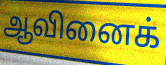
ஆவினைக்